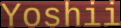
Yoshii